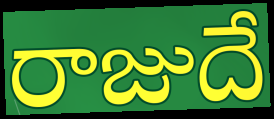
రాజుదే